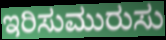
ಇರಿಸುಮುರುಸು